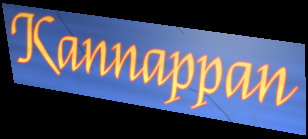
Kannappan